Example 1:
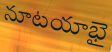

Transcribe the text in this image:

నూటయాభై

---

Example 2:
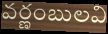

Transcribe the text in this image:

వర్ణంబులవి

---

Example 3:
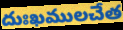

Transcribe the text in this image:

దుఃఖములచేత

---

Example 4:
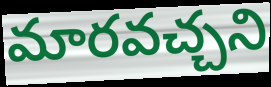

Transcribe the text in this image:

మారవచ్చని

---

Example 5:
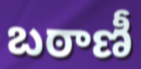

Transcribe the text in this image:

బఠాణీ